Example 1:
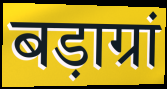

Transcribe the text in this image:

बड़ाग्रां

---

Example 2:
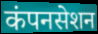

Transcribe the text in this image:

कंपनसेशन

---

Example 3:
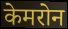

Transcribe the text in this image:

केमरोन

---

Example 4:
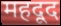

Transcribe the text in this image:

महदूद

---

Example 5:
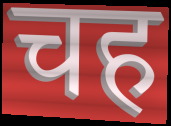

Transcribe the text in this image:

चह